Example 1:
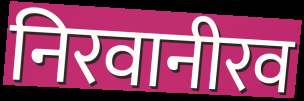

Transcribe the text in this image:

निरवानीरव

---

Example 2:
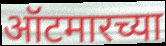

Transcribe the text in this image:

ऑटमारच्या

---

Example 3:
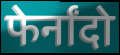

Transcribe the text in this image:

फेर्नांदो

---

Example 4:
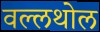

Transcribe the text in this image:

वल्लथोल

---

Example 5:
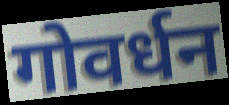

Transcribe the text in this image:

गोवर्धन